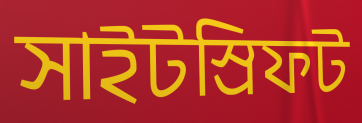
সাইটস্রিফট